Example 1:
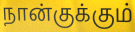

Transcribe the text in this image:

நான்குக்கும்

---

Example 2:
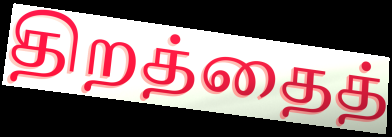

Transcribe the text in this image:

திறத்தைத்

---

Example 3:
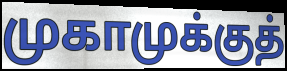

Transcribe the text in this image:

முகாமுக்குத்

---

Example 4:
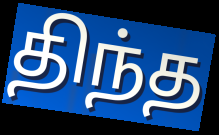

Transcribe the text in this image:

திந்த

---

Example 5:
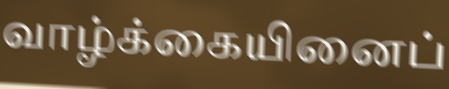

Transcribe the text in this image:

வாழ்க்கையினைப்